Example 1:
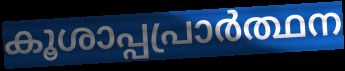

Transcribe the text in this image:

കൂശാപ്പപ്രാർത്ഥന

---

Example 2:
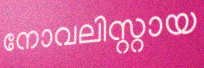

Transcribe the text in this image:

നോവലിസ്റ്റായ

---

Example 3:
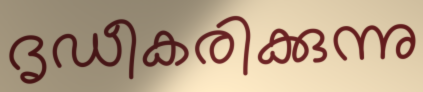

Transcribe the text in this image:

ദൃഡീകരിക്കുന്നു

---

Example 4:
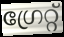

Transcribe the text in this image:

ഗ്രേറ്റ്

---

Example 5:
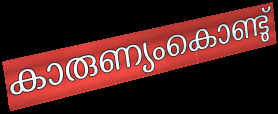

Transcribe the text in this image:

കാരുണ്യംകൊണ്ടു്